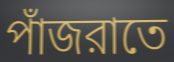
পাঁজরাতে